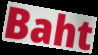
Baht